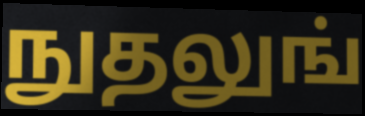
நுதலுங்